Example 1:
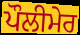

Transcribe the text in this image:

ਪੌਲੀਮੇਰ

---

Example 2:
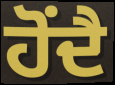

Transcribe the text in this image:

ਹੋਂਦੈ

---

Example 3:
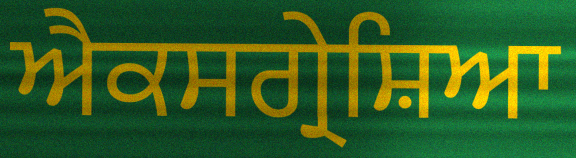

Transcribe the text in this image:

ਐਕਸਗ੍ਰੇਸ਼ਿਆ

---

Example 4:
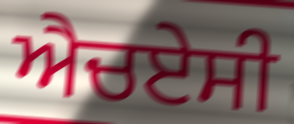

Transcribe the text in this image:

ਐਚਏਸੀ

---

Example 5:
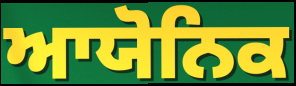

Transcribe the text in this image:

ਆਯੋਨਿਕ